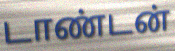
டாண்டன்